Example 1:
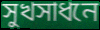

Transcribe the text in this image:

সুখসাধনে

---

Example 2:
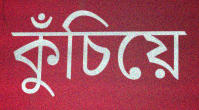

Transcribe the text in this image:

কুঁচিয়ে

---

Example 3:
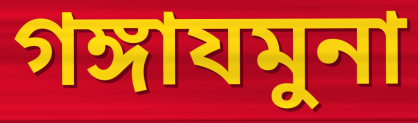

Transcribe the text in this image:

গঙ্গাযমুনা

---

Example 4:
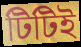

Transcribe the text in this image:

টিটিই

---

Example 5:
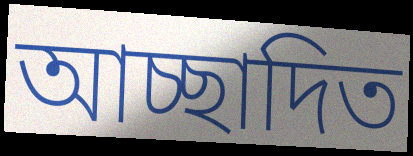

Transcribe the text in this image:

আচ্ছাদিত